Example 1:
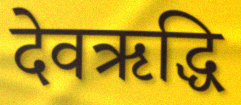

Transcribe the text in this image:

देवऋद्धि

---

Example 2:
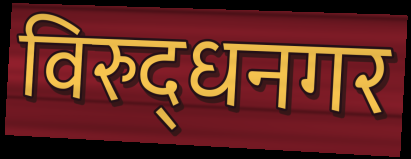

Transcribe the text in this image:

विरुद्धनगर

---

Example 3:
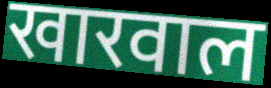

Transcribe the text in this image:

खारवाल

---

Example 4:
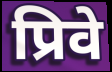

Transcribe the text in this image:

प्रिवे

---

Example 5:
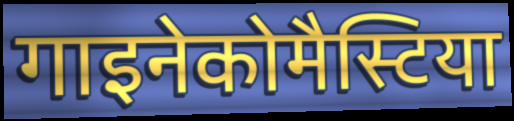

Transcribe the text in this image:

गाइनेकोमैस्टिया